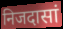
निजदासां